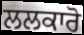
ਲਲਕਾਰੋ